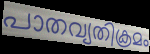
പാതവ്യതിക്രമം